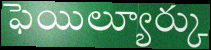
ఫెయిల్యూర్కు